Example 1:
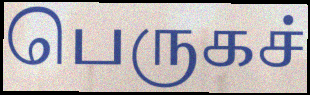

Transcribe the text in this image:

பெருகச்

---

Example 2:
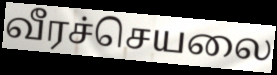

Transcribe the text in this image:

வீரச்செயலை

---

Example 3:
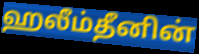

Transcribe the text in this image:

ஹலீம்தீனின்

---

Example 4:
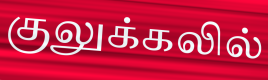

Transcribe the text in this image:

குலுக்கலில்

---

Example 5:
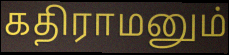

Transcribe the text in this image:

கதிராமனும்